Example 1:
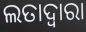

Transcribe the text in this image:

ଲତାଦ୍ୱାରା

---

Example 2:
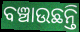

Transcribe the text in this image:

ବଞ୍ଚାଉଛନ୍ତି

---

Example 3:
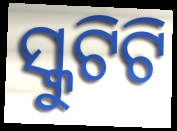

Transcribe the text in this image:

ସ୍କୁଟିଟି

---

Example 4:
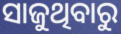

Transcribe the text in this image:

ସାଜୁଥିବାରୁ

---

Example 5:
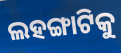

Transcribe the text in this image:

ଲହଙ୍ଗାଟିକୁ